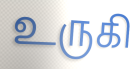
உருகி